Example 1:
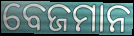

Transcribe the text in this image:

ବେଜମାନ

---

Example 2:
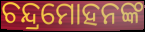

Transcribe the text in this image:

ଚନ୍ଦ୍ରମୋହନଙ୍କ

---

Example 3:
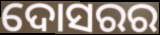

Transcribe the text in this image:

ଦୋସରର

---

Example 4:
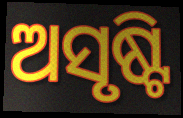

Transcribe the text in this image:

ଅସୃଷ୍ଟି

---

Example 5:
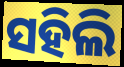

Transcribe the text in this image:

ସହିଲି